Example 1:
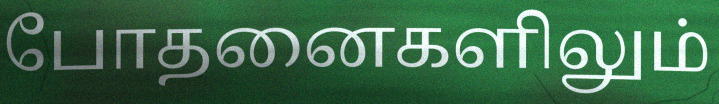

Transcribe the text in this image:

போதனைகளிலும்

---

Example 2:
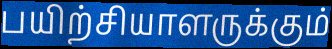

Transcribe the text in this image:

பயிற்சியாளருக்கும்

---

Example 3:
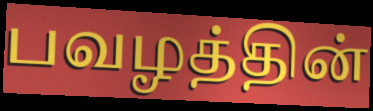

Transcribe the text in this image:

பவழத்தின்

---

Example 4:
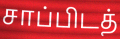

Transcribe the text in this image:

சாப்பிடத்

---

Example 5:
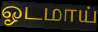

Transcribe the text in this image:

ஓடமாய்